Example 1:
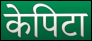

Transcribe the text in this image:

केपिटा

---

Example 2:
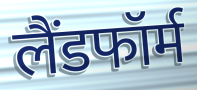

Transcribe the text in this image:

लैंडफॉर्म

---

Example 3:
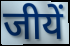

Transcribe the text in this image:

जीयें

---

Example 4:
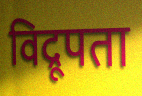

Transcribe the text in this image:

विद्रूपता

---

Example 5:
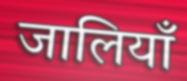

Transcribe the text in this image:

जालियाँ